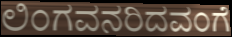
ಲಿಂಗವನರಿದವಂಗೆ